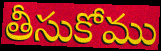
తీసుకోము